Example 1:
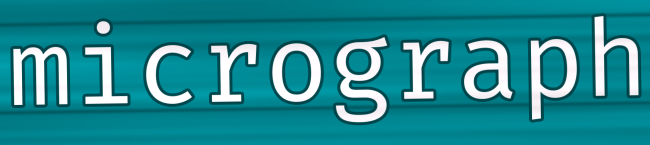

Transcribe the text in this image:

micrograph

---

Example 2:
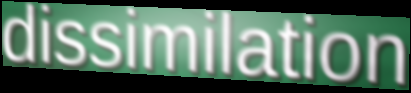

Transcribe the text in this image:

dissimilation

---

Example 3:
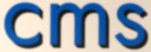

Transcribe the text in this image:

cms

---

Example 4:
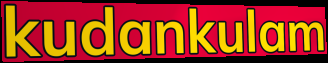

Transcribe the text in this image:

kudankulam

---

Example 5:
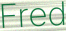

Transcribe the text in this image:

Fred